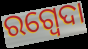
ରଗ୍ବେଦା